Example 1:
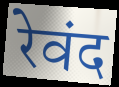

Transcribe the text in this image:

रेवंद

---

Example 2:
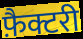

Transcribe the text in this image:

फ़ैक्टरी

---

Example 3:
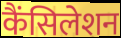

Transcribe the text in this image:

कैंसिलेशन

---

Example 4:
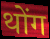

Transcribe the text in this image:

थोंग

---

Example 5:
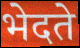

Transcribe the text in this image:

भेदते